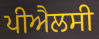
ਪੀਐਲਸੀ